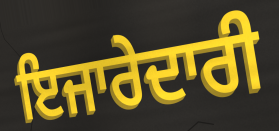
ਇਜਾਰੇਦਾਰੀ